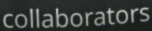
collaborators